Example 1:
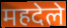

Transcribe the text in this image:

महदेले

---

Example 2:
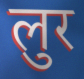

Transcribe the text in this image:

लुर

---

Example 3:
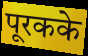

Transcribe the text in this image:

पूरकके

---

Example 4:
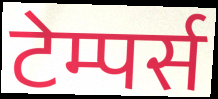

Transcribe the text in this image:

टेम्पर्स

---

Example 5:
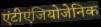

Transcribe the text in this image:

एंटीएंजियोजेनिक